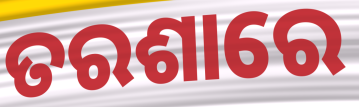
ତରଶାରେ